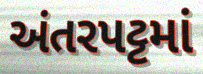
અંતરપટ્ટમાં